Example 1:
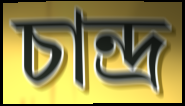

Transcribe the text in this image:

চান্দ্র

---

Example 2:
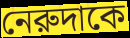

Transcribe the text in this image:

নেরুদাকে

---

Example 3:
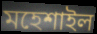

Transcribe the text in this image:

মহেশাইল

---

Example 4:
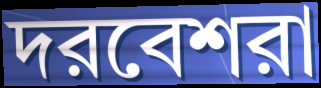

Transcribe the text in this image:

দরবেশরা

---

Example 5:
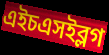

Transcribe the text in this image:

এইচএসইব্লগ